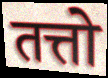
तत्तो